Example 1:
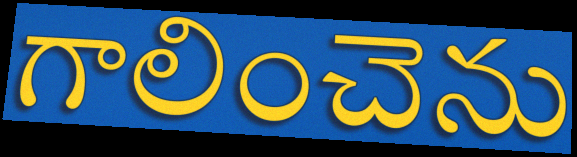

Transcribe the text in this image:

గాలించెను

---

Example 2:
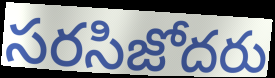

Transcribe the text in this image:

సరసిజోదరు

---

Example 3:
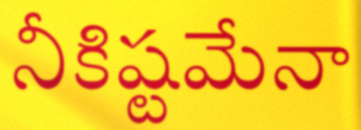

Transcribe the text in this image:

నీకిష్టమేనా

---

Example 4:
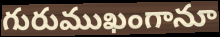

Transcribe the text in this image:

గురుముఖంగానూ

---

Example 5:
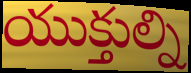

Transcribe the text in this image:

యుక్తుల్ని